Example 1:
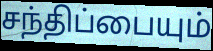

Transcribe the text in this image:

சந்திப்பையும்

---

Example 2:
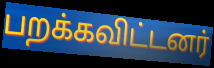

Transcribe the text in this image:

பறக்கவிட்டனர்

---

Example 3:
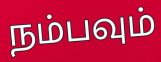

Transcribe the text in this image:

நம்பவும்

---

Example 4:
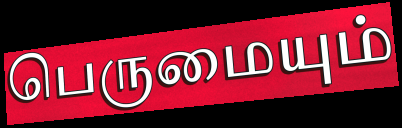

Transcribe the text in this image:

பெருமையும்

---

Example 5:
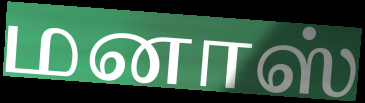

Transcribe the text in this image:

மனாஸ்